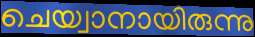
ചെയ്വാനായിരുന്നു